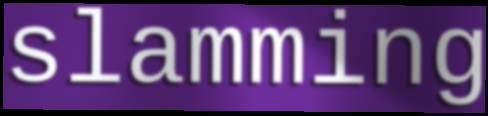
slamming